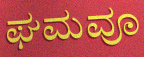
ಘಮವೂ